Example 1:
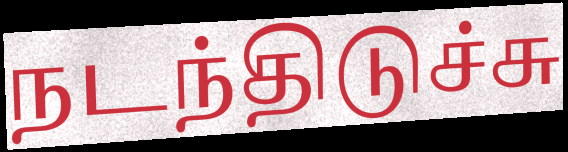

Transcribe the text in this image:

நடந்திடுச்சு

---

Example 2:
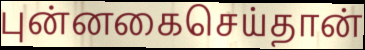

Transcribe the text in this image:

புன்னகைசெய்தான்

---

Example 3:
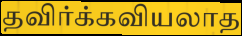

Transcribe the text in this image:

தவிர்க்கவியலாத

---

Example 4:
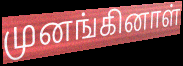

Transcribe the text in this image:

முனங்கினாள்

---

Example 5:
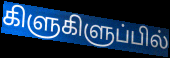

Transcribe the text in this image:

கிளுகிளுப்பில்